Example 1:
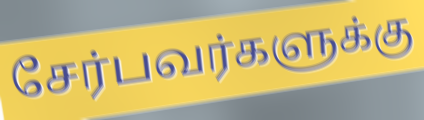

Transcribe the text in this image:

சேர்பவர்களுக்கு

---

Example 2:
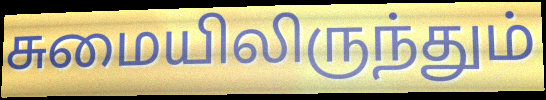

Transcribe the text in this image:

சுமையிலிருந்தும்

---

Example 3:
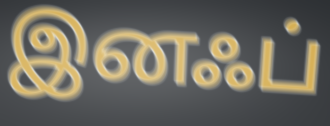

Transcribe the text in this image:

இனஃப்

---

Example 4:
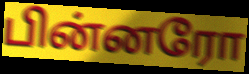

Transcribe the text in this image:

பின்னரோ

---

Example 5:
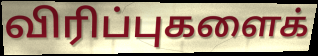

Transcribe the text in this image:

விரிப்புகளைக்